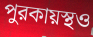
পুরকায়স্থও